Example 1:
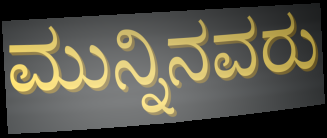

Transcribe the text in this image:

ಮುನ್ನಿನವರು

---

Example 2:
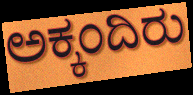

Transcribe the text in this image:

ಅಕ್ಕಂದಿರು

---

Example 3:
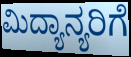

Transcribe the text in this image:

ಮಿದ್ಯಾನ್ಯರಿಗೆ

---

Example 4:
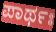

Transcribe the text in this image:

ಪಾರ್ಥಃ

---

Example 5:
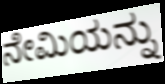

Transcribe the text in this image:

ನೇಮಿಯನ್ನು